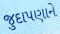
જુદાપણાને